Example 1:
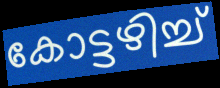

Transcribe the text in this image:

കോട്ടഴിച്ച്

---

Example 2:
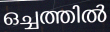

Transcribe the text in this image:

ഒച്ചത്തിൽ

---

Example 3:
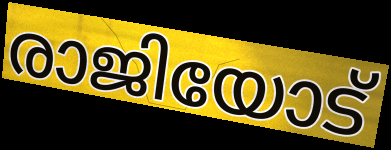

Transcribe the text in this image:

രാജിയോട്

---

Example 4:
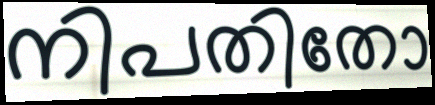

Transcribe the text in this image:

നിപതിതോ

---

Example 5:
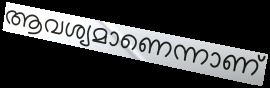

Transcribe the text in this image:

ആവശ്യമാണെന്നാണ്